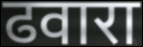
ढवारा